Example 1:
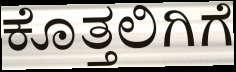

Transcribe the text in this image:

ಕೊತ್ತಲಿಗಿಗೆ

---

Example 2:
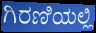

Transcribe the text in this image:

ಗಿರಣಿಯಲ್ಲಿ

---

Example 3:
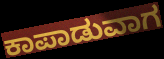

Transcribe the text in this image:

ಕಾಪಾಡುವಾಗ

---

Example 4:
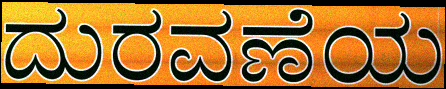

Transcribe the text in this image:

ದುರವಣೆಯ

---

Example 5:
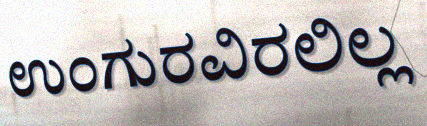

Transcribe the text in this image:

ಉಂಗುರವಿರಲಿಲ್ಲ